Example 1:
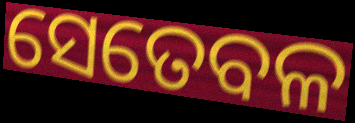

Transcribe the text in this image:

ସେତେବଳ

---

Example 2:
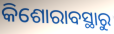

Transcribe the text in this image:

କିଶୋରାବସ୍ଥାରୁ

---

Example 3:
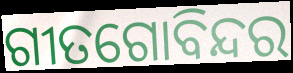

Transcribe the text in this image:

ଗୀତଗୋବିନ୍ଦର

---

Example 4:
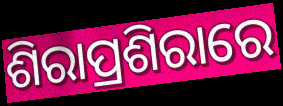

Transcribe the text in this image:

ଶିରାପ୍ରଶିରାରେ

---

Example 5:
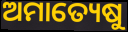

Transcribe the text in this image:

ଅମାତ୍ୟେଷୁ